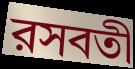
রসবতী